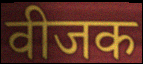
वीजक